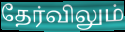
தேர்விலும்